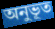
অনুভূত